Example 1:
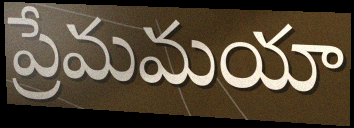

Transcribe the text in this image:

ప్రేమమయా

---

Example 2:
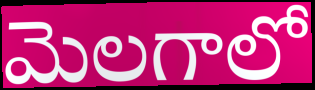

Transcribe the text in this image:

మెలగాలో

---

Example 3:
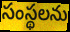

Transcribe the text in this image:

సంస్థలను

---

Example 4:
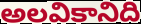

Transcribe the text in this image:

అలవికానిది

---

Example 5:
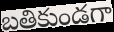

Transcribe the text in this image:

బతికుండగా